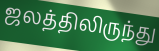
ஜலத்திலிருந்து